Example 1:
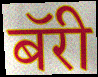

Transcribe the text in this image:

बॅरी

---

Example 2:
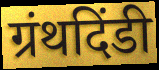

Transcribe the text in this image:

ग्रंथदिंडी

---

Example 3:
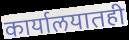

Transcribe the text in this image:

कार्यालयातही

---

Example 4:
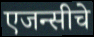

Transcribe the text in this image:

एजन्सीचे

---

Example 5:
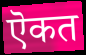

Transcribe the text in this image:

ऎकत